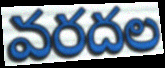
వరదల